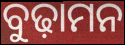
ବୁଢ଼ାମନ